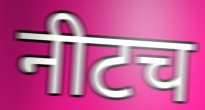
नीटच